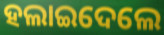
ହଲାଇଦେଲେ